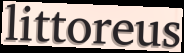
littoreus